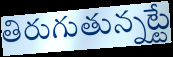
తిరుగుతున్నట్టే